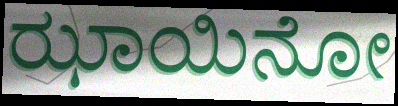
ಝಾಯಿನೋ